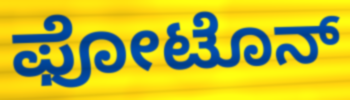
ಫೋಟೊನ್